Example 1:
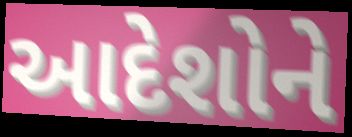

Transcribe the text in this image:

આદેશોને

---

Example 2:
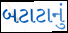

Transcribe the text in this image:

બટાટાનું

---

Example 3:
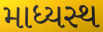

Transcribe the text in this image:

માધ્યસ્થ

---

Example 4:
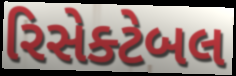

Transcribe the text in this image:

રિસેક્ટેબલ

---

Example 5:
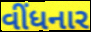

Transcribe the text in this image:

વીંધનાર